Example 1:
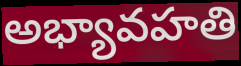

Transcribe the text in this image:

అభ్యావహతి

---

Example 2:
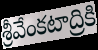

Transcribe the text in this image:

శ్రీవేంకటాద్రికి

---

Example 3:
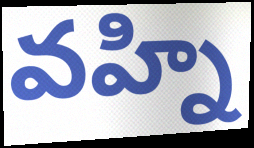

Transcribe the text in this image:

వహ్ని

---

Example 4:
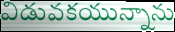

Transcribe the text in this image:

విడువకయున్నాను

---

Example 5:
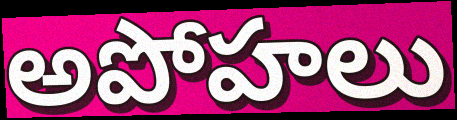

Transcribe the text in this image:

అపోహలు